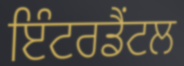
ਇੰਟਰਡੈਂਟਲ